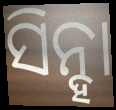
ସିନ୍ହା